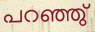
പറഞ്ഞു്